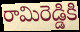
రామిరెడ్డికి